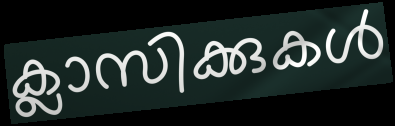
ക്ലാസിക്കുകൾ